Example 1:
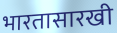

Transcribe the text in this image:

भारतासारखी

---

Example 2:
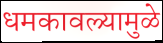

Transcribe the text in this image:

धमकावल्यामुळे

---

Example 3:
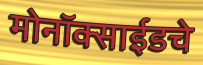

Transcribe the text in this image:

मोनॉक्साईडचे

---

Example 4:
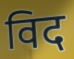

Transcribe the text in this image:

विद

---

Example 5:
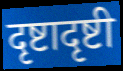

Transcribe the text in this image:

दृष्टादृष्टी